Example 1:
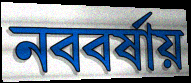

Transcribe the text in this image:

নববর্ষায়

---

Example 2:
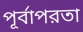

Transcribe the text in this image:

পূর্বাপরতা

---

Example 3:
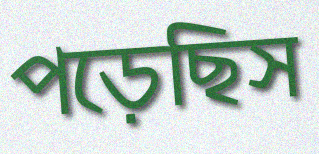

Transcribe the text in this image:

পড়েছিস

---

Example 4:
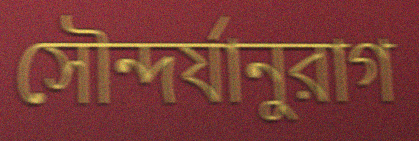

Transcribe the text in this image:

সৌন্দর্যানুরাগ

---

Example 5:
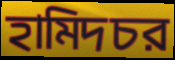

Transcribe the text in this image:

হামিদচর